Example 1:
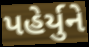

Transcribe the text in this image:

પહેર્યુને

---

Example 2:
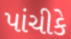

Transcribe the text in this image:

પાંચીકે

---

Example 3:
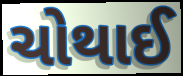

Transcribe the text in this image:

ચોથાઈ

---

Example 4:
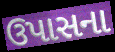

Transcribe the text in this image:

ઉપાસના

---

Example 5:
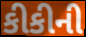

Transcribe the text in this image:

કીકીની